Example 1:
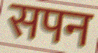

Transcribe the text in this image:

सपन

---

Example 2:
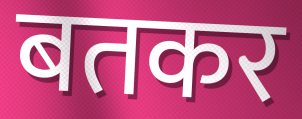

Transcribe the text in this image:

बतकर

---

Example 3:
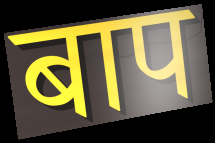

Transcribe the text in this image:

बाप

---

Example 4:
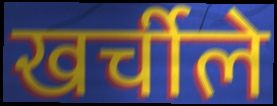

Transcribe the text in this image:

खर्चीले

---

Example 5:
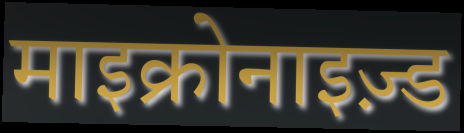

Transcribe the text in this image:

माइक्रोनाइज़्ड